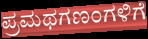
ಪ್ರಮಥಗಣಂಗಳಿಗೆ